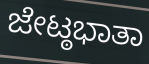
ಜೇಟ್ಠಭಾತಾ